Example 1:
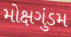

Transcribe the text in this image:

મોક્ષગુંડમ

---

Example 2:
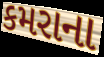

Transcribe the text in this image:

કમરાના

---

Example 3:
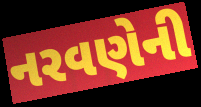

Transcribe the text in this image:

નરવણેની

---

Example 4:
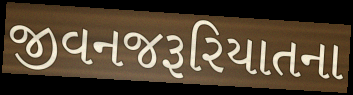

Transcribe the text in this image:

જીવનજરૂરિયાતના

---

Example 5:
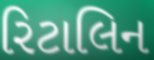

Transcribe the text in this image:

રિટાલિન